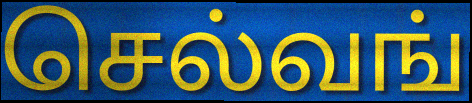
செல்வங்